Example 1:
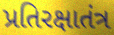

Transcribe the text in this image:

પ્રતિરક્ષાતંત્ર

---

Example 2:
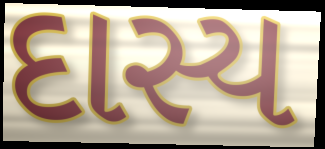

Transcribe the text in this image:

દાસ્ય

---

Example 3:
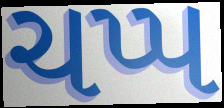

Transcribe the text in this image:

ચપ્પ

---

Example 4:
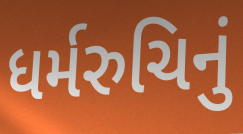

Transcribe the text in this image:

ધર્મરુચિનું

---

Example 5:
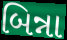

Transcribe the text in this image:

બિન્ના